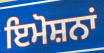
ਇਮੋਸ਼ਨਾਂ